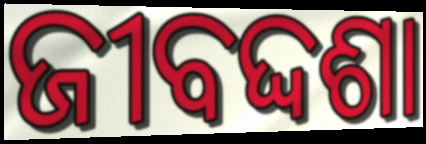
ଜୀବଦ୍ଦଶା